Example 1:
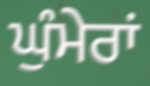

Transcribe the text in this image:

ਘੁੰਮੇਰਾਂ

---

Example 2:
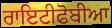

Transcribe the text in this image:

ਰਾਇਟੀਫੋਬੀਆ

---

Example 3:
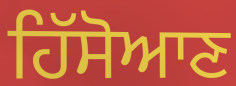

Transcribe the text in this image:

ਹਿੱਸੋਆਣ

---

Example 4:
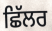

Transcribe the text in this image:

ਛਿੱਲਰ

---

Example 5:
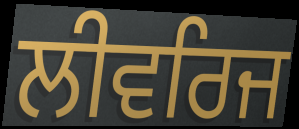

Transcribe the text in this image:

ਲੀਵਰਿਜ